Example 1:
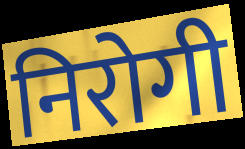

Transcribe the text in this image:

निरोगी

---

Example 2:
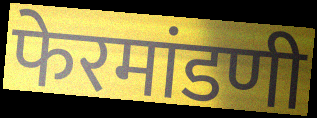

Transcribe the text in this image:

फेरमांडणी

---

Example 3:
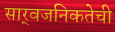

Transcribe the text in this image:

सार्वजनिकतेची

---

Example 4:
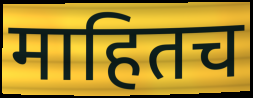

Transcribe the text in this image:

माहितच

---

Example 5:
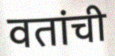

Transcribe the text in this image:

वतांची